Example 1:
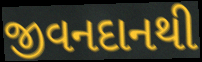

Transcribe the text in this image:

જીવનદાનથી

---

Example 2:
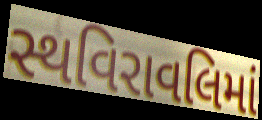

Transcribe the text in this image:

સ્થવિરાવલિમાં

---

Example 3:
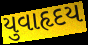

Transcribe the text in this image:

યુવાહૃદય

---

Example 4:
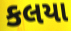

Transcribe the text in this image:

કલયા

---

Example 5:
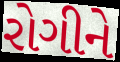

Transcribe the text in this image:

રોગીને